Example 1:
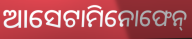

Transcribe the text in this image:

ଆସେଟାମିନୋଫେନ୍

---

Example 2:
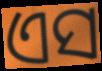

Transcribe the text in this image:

ଏସ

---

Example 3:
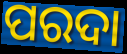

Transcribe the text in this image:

ପରଦା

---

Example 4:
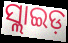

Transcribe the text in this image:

ସ୍ଲାଇଡ଼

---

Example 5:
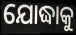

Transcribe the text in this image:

ଯୋଦ୍ଧାକୁ